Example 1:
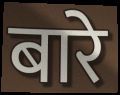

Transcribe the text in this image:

बारे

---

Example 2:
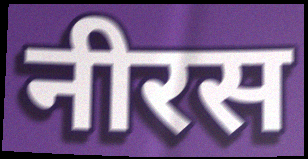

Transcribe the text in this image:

नीरस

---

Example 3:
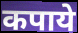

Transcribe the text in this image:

कपाये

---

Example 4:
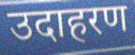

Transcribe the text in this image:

उदाहरण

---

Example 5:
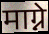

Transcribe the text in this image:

माग्ने